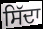
ਸਿੱਦਾ